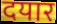
दयार